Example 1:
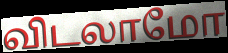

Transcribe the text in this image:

விடலாமோ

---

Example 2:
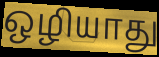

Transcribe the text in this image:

ஒழியாது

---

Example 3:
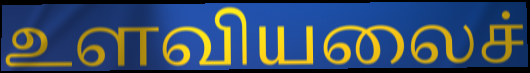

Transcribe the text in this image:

உளவியலைச்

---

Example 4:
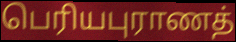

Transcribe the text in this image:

பெரியபுராணத்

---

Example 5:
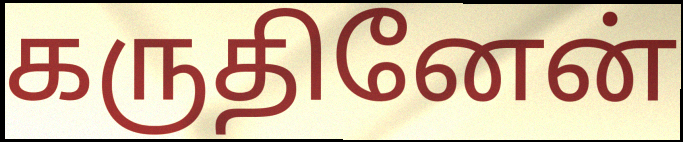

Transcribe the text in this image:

கருதினேன்